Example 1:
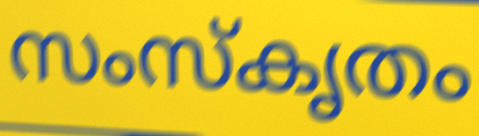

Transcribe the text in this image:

സംസ്കൃതം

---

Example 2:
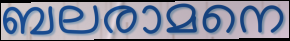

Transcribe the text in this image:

ബലരാമനെ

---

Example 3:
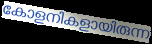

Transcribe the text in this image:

കോളനികളായിരുന്ന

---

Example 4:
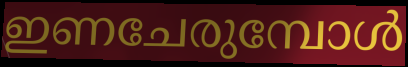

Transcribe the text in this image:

ഇണചേരുമ്പോൾ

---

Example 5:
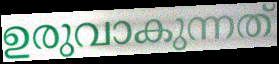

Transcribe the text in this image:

ഉരുവാകുന്നത്